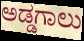
ಅಡ್ಡಗಾಲು